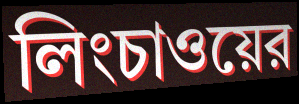
লিংচাওয়ের